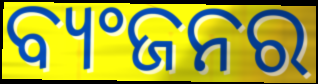
ବ୍ୟଂଜନର